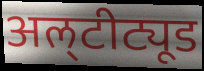
अल्टीट्यूड